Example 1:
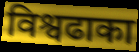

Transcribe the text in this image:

विश्वढाका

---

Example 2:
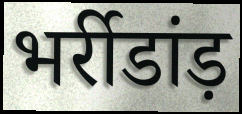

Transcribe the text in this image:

भर्रीडांड़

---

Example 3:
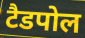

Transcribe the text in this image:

टैडपोल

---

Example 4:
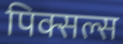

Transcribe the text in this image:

पिक्सल्स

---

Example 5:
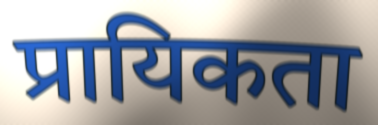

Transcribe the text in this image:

प्रायिकता